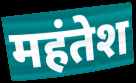
महंतेश